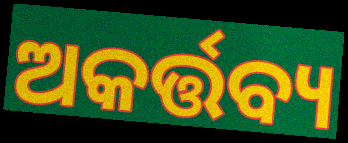
ଅକର୍ତ୍ତବ୍ୟ